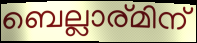
ബെല്ലാര്മിന്